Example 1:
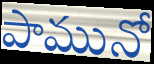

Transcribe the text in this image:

పామునో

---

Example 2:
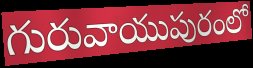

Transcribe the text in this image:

గురువాయుపురంలో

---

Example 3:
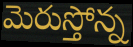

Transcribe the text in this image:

మెరుస్తోన్న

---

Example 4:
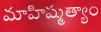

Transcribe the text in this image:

మాహిష్మత్యాం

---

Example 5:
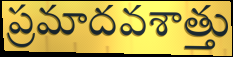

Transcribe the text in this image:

ప్రమాదవశాత్తు